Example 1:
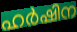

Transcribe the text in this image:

ഹർഷിന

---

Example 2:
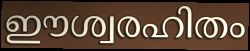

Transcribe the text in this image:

ഈശ്വരഹിതം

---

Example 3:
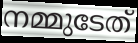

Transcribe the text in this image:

നമ്മുടേത്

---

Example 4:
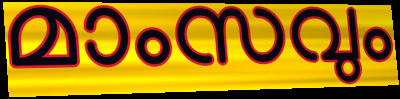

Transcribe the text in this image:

മാംസവും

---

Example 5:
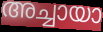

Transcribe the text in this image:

അച്ചായാ